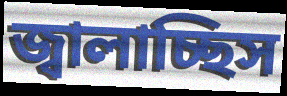
জ্বালাচ্ছিস